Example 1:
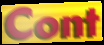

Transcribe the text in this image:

Cont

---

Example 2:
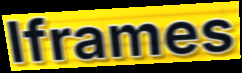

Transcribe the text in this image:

Iframes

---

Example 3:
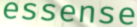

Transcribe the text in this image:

essense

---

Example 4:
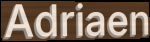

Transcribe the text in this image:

Adriaen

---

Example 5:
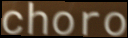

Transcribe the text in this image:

choro